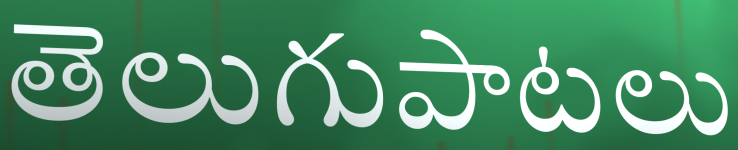
తెలుగుపాటలు